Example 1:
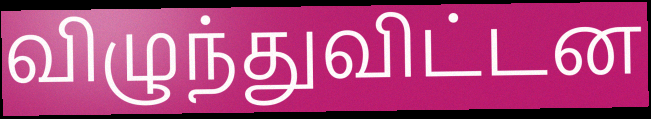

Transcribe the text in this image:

விழுந்துவிட்டன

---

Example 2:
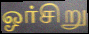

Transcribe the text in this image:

ஓர்சிறு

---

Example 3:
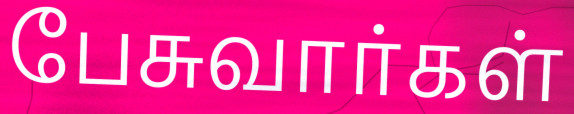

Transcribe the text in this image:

பேசுவார்கள்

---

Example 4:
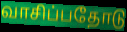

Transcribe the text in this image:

வாசிப்பதோடு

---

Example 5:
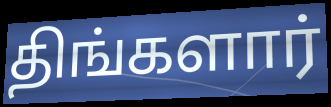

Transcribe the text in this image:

திங்களார்